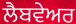
ਲੈਬਵੇਅਰ